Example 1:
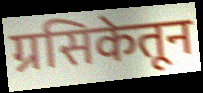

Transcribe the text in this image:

ग्रसिकेतून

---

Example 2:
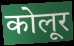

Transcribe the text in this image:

कोलूर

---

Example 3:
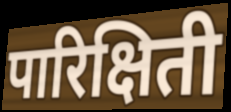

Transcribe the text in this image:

पारिक्षिती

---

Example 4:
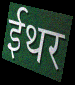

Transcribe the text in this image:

ईथर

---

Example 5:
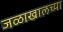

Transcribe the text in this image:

जळाखालच्या